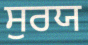
ਸੁਰਯ